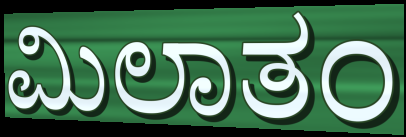
ಮಿಲಾತಂ